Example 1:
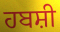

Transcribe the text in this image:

ਹਬਸ਼ੀ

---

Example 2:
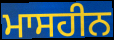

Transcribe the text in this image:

ਮਾਸਹੀਨ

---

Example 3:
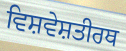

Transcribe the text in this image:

ਵਿਸ਼ਵੇਸ਼ਤੀਰਥ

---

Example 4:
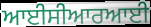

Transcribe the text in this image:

ਆਈਸੀਆਰਆਈ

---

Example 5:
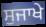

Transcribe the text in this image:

ਸੁਜਾਖੇ